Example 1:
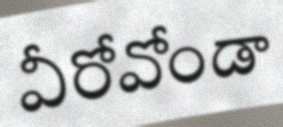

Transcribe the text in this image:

వీరోవోండా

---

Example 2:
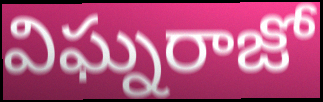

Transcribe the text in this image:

విఘ్నరాజో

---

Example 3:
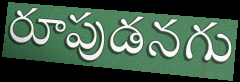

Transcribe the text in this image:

రూపుడనగు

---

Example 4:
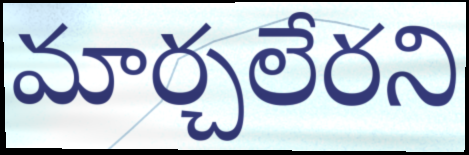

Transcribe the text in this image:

మార్చలేరని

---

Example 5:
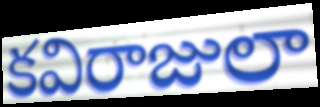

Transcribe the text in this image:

కవిరాజులా